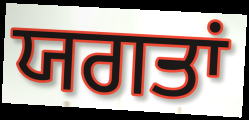
ਯਗਤਾਂ